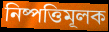
নিষ্পত্তিমূলক